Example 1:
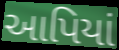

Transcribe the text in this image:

આપિયાં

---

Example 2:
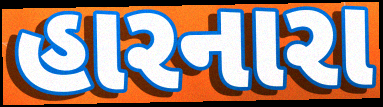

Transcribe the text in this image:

હારનારા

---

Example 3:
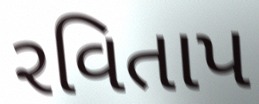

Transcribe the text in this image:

રવિતાપ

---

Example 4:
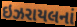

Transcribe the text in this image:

ઇઝરાયલનાં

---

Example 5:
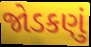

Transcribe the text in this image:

જોડકણું